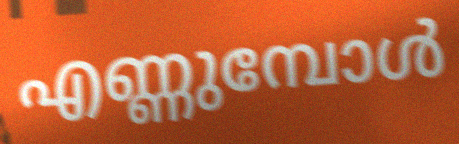
എണ്ണുമ്പോൾ